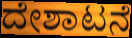
ದೇಶಾಟನೆ